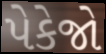
પેકેજો